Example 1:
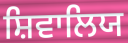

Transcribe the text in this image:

ਸ਼ਿਵਾਲਿਯ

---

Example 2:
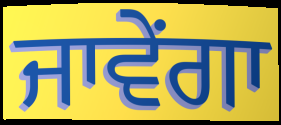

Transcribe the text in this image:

ਜਾਵੇਂਗਾ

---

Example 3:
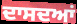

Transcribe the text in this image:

ਦਾਸਦਆਂ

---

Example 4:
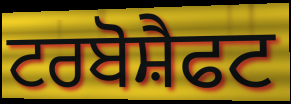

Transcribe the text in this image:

ਟਰਬੋਸ਼ੈਫਟ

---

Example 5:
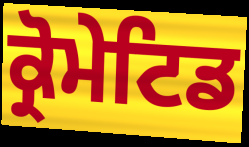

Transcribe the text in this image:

ਕ੍ਰੋਮੇਟਿਡ